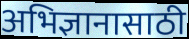
अभिज्ञानासाठी